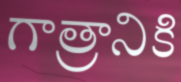
గాత్రానికి